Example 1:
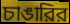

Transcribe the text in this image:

চাঙারির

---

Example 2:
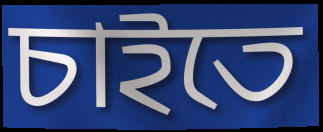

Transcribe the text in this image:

চাইতে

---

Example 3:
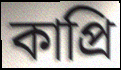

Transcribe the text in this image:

কাপ্রি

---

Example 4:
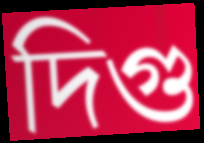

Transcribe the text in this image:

দিগু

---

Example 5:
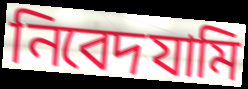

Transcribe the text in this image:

নিবেদযামি